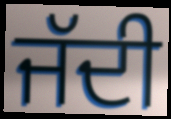
ਜੱਦੀ